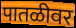
पातळीवर